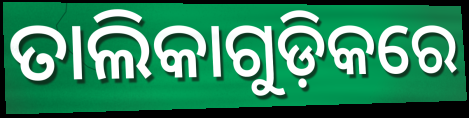
ତାଲିକାଗୁଡ଼ିକରେ